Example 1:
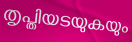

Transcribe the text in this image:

തൃപ്തിയടയുകയും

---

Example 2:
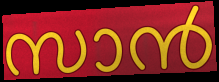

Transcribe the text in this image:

സാൻ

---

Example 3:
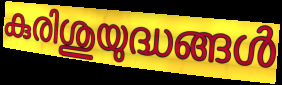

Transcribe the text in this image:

കുരിശുയുദ്ധങ്ങൾ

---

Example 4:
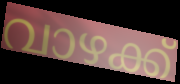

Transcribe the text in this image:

വാഴക്ക്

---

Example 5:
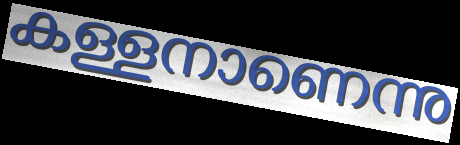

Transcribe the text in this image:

കള്ളനാണെന്നു